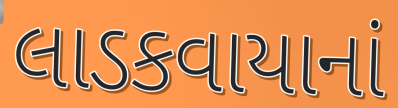
લાડકવાયાનાં